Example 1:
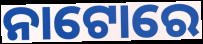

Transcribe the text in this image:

ନାଟୋରେ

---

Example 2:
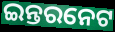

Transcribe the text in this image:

ଇନ୍ତରନେଟ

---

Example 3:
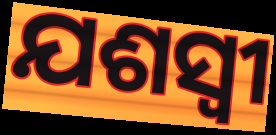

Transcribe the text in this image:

ଯଶସ୍ଵୀ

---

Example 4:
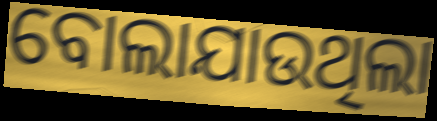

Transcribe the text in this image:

ବୋଲାଯାଉଥିଲା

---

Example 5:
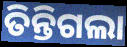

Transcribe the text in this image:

ତିନ୍ତିଗଲା